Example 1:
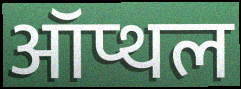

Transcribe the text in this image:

ऑप्थल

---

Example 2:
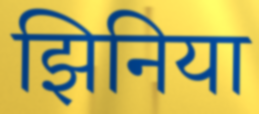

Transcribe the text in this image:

झिनिया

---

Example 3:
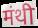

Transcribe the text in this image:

मंथी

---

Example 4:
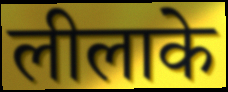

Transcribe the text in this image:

लीलाके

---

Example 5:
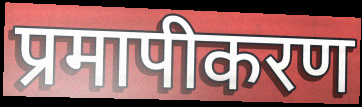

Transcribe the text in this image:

प्रमापीकरण